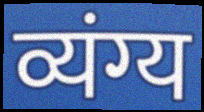
व्यंग्य